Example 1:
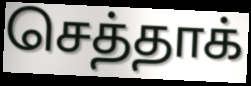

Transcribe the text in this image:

செத்தாக்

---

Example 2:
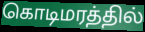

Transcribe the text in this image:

கொடிமரத்தில்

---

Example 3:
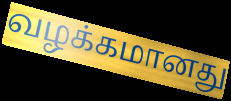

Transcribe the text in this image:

வழக்கமானது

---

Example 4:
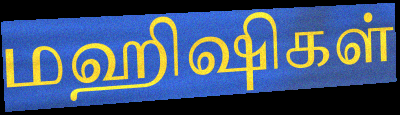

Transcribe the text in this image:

மஹிஷிகள்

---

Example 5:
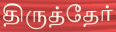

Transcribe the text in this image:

திருத்தேர்